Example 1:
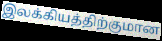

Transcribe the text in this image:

இலக்கியத்திற்குமான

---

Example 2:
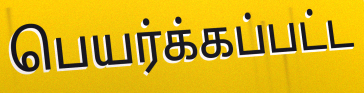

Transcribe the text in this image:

பெயர்க்கப்பட்ட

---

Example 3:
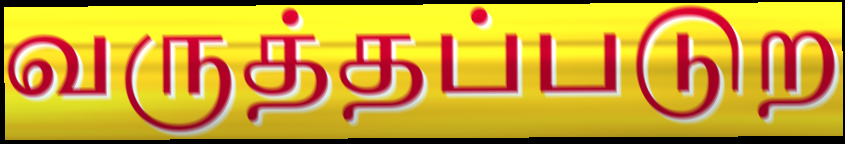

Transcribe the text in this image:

வருத்தப்படுற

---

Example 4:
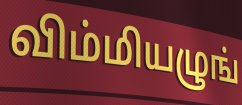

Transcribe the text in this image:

விம்மியழுங்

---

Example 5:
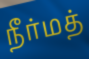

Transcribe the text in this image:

நீர்மத்